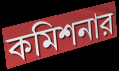
কমিশনার